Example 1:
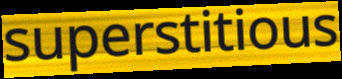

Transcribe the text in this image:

superstitious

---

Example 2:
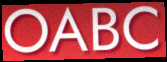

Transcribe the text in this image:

OABC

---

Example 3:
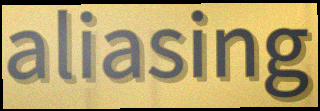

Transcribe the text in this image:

aliasing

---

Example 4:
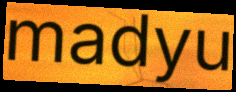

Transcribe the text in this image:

madyu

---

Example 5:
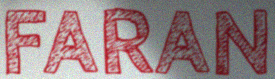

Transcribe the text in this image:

FARAN